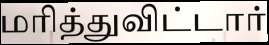
மரித்துவிட்டார்